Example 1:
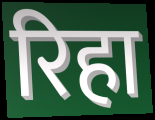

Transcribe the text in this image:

रिहा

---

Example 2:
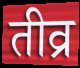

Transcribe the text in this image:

तीव्र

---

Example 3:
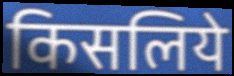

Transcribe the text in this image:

किसलिये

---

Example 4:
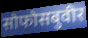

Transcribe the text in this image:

सोफोसबुवीर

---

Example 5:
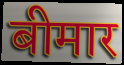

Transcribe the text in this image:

बीमार